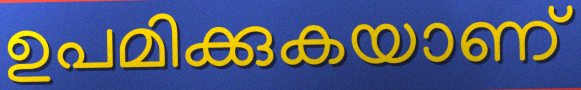
ഉപമിക്കുകയാണ്